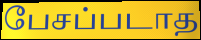
பேசப்படாத